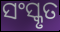
ସଂସ୍କୃତ